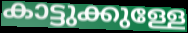
കാട്ടുക്കുള്ളേ